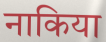
नाकिया